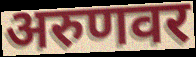
अरुणवर